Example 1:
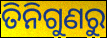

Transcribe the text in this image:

ତିନିଗୁଣରୁ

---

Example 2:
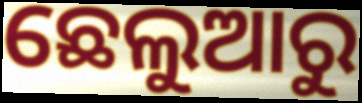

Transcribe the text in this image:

ଛେଲୁଆରୁ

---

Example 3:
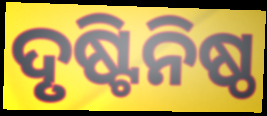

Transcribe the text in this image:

ଦୃଷ୍ଟିନିଷ୍ଠ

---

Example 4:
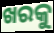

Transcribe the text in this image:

ଖରକୁ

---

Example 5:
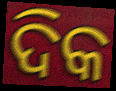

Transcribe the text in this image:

ଦିକ